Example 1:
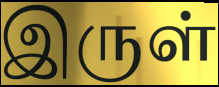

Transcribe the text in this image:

இருள்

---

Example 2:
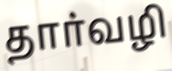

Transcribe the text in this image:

தார்வழி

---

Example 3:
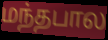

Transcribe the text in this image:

மந்தபால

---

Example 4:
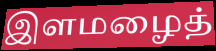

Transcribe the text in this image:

இளமழைத்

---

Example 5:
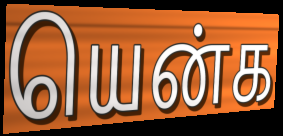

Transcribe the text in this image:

யென்க